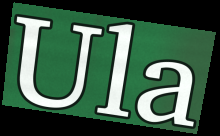
Ula